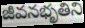
జీవనభృతిని